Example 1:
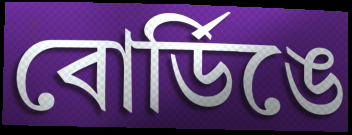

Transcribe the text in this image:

বোর্ডিঙে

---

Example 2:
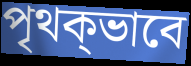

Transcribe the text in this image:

পৃথক্ভাবে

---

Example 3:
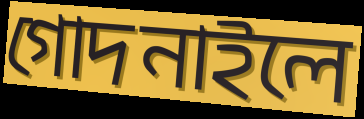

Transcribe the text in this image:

গোদনাইলে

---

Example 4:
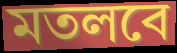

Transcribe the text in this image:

মতলবে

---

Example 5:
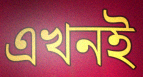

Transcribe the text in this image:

এখনই